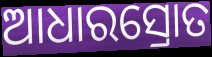
ଆଧାରସ୍ରୋତ